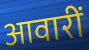
आवारीं